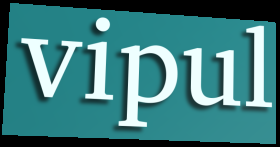
vipul